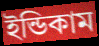
ইন্ডিকাম